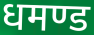
धमण्ड